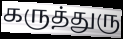
கருத்துரு